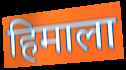
हिमाला